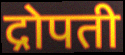
द्रोपती